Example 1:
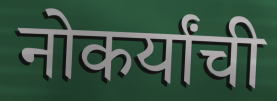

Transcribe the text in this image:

नोकर्यांची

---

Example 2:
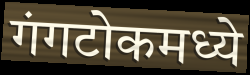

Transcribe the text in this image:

गंगटोकमध्ये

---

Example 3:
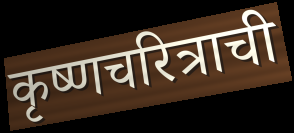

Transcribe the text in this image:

कृष्णचरित्राची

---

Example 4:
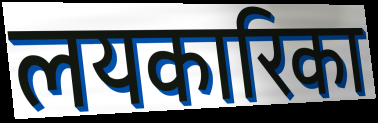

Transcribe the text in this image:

लयकारिका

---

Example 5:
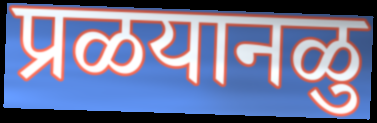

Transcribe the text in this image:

प्रळयानळु